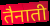
तैनाती